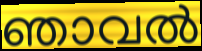
ഞാവൽ